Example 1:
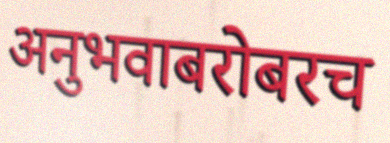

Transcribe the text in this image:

अनुभवाबरोबरच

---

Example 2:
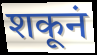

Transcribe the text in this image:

शकूनं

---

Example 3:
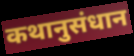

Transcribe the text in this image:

कथानुसंधान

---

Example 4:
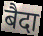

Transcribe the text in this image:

बैदा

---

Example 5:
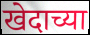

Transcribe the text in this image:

खेदाच्या